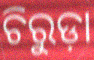
ଚିରୁଡ଼ା